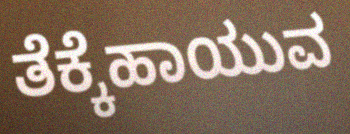
ತೆಕ್ಕೆಹಾಯುವ